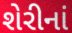
શેરીનાં